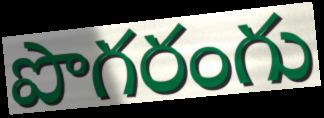
పొగరంగు